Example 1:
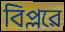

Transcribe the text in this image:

বিপ্লৱে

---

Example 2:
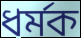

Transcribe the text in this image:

ধৰ্মক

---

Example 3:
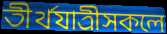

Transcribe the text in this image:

তীৰ্থযাত্ৰীসকলে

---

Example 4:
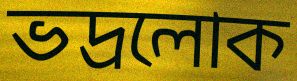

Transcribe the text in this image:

ভদ্ৰলোক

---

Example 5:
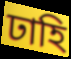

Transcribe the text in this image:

ঢাহি